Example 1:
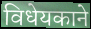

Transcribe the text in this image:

विधेयकाने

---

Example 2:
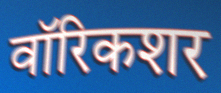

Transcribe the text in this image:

वॉरिकशर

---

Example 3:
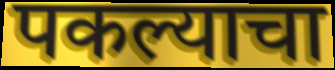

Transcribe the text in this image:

पकल्याचा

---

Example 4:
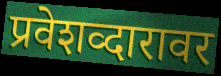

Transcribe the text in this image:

प्रवेशव्दारावर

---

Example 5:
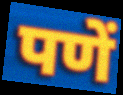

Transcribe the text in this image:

पणें